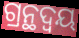
ଗ୍ରନ୍ଥଦ୍ଵୟ